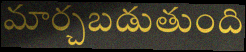
మార్చబడుతుంది